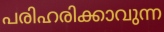
പരിഹരിക്കാവുന്ന